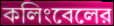
কলিংবেলের